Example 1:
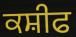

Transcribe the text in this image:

ਕਸ਼ੀਫ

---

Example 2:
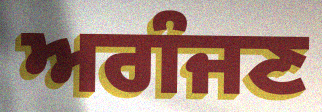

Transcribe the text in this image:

ਅਗੰਜਣ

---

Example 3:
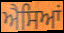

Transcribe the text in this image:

ਐਸਿਆਂ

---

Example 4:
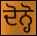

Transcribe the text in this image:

ਦੋਨ੍ਹੋ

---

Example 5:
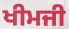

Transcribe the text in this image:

ਖੀਮਜੀ